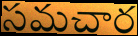
సమచార